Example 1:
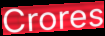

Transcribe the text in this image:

Crores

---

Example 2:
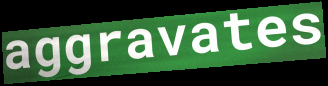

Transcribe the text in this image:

aggravates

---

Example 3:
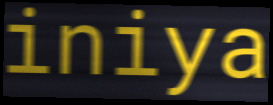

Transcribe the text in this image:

iniya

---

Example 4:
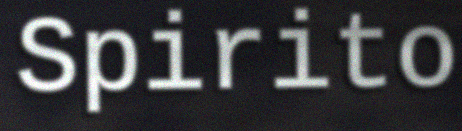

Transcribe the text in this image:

Spirito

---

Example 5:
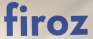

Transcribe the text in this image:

firoz